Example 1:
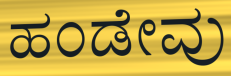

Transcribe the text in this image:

ಹಂಡೇವು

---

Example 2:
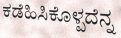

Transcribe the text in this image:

ಕಡೆಹಿಸಿಕೊಳ್ಪದೆನ್ನ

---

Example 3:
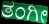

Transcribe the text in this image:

ತಂಗೀ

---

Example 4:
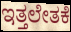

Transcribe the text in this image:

ಇತ್ತಲೇತಕೆ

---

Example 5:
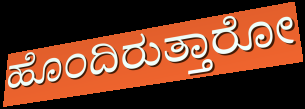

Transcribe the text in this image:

ಹೊಂದಿರುತ್ತಾರೋ